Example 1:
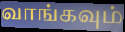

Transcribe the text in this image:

வாங்கவும்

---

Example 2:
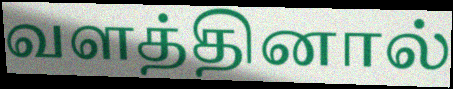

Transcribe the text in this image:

வளத்தினால்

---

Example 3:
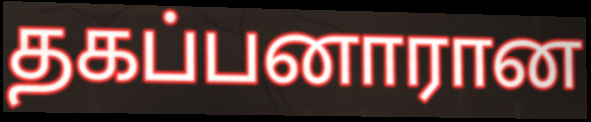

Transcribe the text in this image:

தகப்பனாரான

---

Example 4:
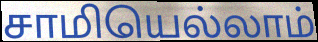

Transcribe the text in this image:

சாமியெல்லாம்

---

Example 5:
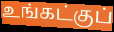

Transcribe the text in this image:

உங்கட்குப்